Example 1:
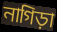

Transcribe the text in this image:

নাগিড়া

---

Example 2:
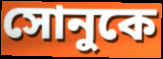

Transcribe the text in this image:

সোনুকে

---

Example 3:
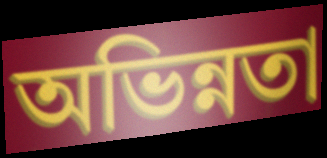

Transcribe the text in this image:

অভিন্নতা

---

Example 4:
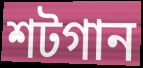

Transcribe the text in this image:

শটগান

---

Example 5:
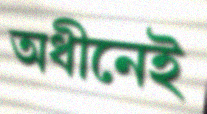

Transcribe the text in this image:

অধীনেই